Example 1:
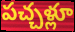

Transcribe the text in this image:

పచ్చళ్లూ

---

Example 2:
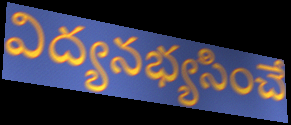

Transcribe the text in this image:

విద్యనభ్యసించే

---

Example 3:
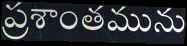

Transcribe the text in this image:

ప్రశాంతమును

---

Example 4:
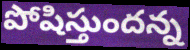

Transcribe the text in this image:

పోషిస్తుందన్న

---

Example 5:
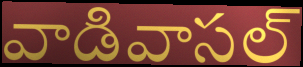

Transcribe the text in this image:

వాడివాసల్